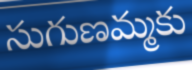
సుగుణమ్మకు